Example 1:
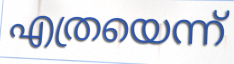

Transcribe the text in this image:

എത്രയെന്ന്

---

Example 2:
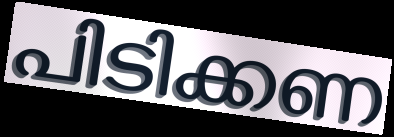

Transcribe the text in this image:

പിടിക്കണ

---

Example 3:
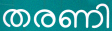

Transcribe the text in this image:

തരണി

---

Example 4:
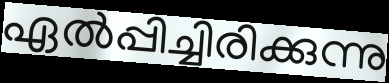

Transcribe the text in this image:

ഏൽപ്പിച്ചിരിക്കുന്നു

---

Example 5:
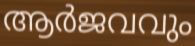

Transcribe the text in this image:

ആർജവവും